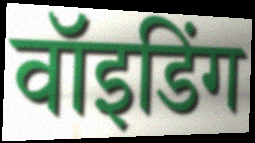
वॉइडिंग